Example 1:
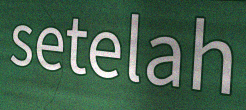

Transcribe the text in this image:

setelah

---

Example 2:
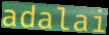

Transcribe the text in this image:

adalai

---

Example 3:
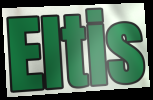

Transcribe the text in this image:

Eltis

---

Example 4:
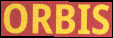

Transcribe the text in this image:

ORBIS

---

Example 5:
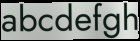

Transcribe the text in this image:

abcdefgh